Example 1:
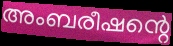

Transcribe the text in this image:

അംബരീഷന്റെ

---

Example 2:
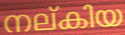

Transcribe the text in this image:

നല്‌കിയ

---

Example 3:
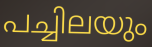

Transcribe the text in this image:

പച്ചിലയും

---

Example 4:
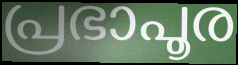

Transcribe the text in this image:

പ്രഭാപൂര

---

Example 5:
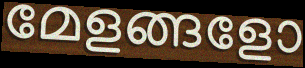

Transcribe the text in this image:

മേളങ്ങളോ